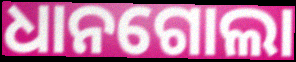
ଧାନଗୋଲା